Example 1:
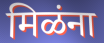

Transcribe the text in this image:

मिळंना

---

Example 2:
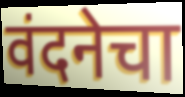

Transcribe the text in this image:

वंदनेचा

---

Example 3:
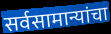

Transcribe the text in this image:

सर्वसामान्यांचा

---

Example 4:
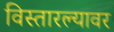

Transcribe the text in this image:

विस्तारल्यावर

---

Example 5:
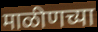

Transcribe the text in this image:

माळीणच्या